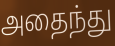
அதைந்து